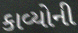
કાવ્યોની